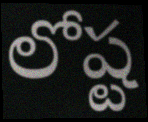
లోష్ట